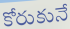
కోరుకునే